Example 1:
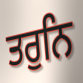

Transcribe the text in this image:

ਤਰੁਨਿ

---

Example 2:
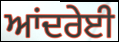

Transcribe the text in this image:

ਆਂਦਰੇਈ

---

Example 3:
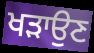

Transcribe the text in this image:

ਖੜਾਉਣ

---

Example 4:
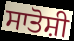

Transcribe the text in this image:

ਸਾਤੋਸ਼ੀ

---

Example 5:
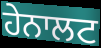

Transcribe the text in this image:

ਹੇਨਾਲਟ